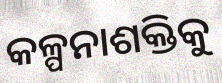
କଳ୍ପନାଶକ୍ତିକୁ